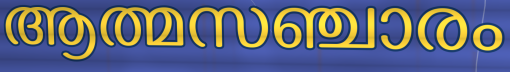
ആത്മസഞ്ചാരം